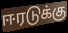
ஈரடுக்கு